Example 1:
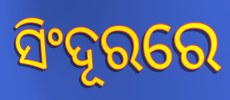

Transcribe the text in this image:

ସିଂଦୂରରେ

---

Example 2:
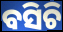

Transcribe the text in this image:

ବସିଚି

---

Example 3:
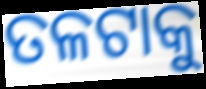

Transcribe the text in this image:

ତଳଟାକୁ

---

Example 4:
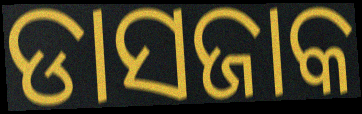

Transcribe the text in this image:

ଡାସଜାକ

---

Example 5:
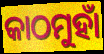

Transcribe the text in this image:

କାଠମୁହାଁ